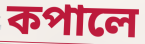
কপালে